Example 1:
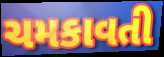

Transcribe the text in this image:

ચમકાવતી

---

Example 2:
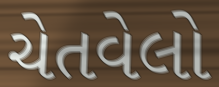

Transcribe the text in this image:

ચેતવેલો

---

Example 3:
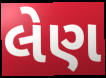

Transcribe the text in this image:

લેણ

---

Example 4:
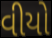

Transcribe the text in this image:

વીયો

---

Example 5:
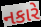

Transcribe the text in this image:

નકારે